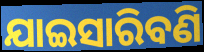
ଯାଇସାରିବଣି